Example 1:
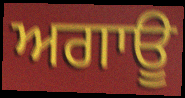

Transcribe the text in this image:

ਅਗਾਊ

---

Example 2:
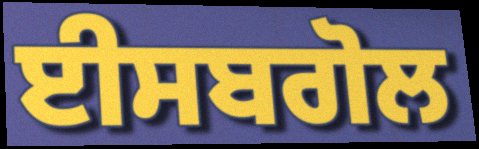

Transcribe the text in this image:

ਈਸਬਗੋਲ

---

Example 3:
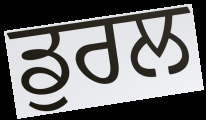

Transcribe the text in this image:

ਡੁਰਲ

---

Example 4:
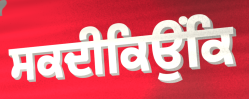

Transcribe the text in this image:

ਸਕਦੀਕਿਉਂਕਿ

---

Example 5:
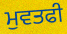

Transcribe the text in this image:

ਮੁਵਤਫੀ